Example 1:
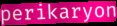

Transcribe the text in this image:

perikaryon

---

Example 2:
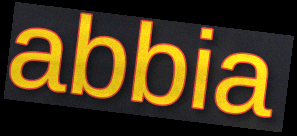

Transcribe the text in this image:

abbia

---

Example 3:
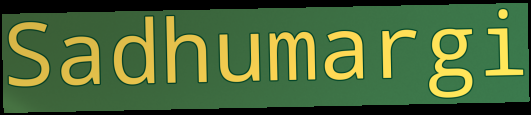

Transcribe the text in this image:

Sadhumargi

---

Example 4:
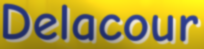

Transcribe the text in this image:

Delacour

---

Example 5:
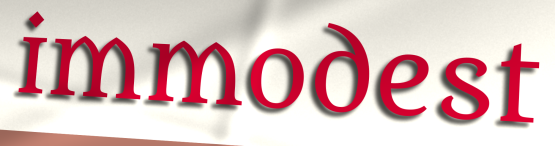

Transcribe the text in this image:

immodest